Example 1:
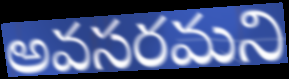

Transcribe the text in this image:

అవసరమని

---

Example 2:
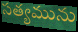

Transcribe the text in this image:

సత్యమును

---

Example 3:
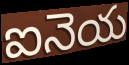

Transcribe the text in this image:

ఐనెయ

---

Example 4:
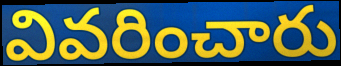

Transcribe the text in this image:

వివరించారు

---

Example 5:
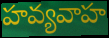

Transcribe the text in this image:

హవ్యవాహ